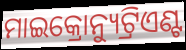
ମାଇକ୍ରୋନ୍ୟୁଟ୍ରିଏଣ୍ଟ